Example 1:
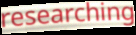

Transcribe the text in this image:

researching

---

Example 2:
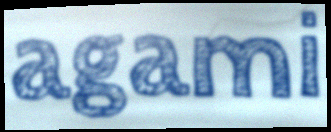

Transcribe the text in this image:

agami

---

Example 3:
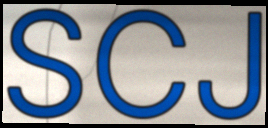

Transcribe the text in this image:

SCJ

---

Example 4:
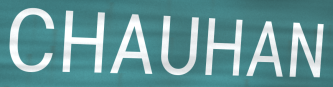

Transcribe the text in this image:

CHAUHAN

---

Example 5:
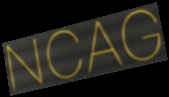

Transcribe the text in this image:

NCAG